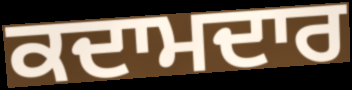
ਕਦਾਮਦਾਰ